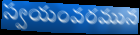
స్వయంవరమున